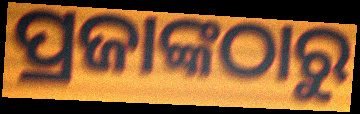
ପ୍ରଜାଙ୍କଠାରୁ